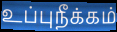
உப்புநீக்கம்